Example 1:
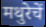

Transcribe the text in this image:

मथुरेचें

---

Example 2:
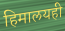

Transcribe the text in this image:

हिमालयही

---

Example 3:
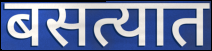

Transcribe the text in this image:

बसत्यात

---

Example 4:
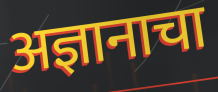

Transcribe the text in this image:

अज्ञानाचा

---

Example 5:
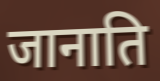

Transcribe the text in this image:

जानाति